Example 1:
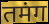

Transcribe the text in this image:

तमंग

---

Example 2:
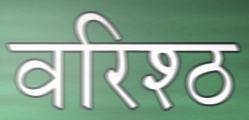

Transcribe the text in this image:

वरिश्ठ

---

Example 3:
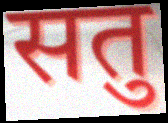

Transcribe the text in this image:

सतु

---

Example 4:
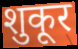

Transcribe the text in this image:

शुकूर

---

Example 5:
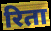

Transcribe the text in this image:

रिता